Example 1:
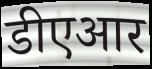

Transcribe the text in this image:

डीएआर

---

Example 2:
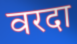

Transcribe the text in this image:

वरदा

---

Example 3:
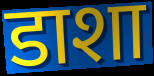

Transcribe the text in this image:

डाशा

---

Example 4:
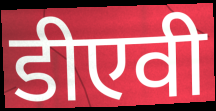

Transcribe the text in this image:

डीएवी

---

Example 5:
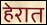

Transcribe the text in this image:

हेरात